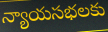
న్యాయసభలకు